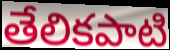
తేలికపాటి